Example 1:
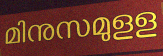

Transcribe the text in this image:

മിനുസമുളള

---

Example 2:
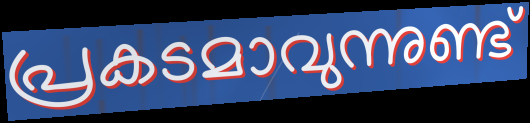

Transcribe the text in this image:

പ്രകടമാവുന്നുണ്ട്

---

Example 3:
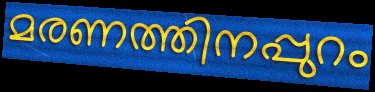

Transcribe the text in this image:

മരണത്തിനപ്പുറം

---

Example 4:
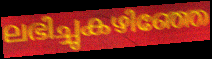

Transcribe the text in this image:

ലഭിച്ചുകഴിഞ്ഞേ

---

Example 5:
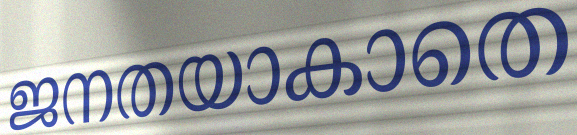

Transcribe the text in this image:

ജനതയാകാതെ